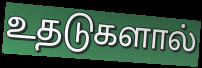
உதடுகளால்